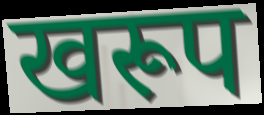
खरूप